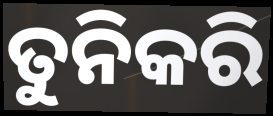
ତୁନିକରି